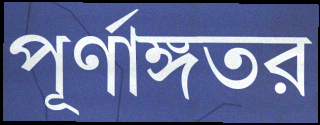
পূর্ণাঙ্গতর